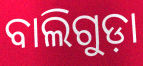
ବାଲିଗୁଡ଼ା